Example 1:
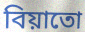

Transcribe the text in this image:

বিয়াতো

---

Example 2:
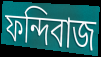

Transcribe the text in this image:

ফন্দিবাজ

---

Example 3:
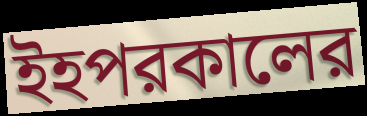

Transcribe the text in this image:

ইহপরকালের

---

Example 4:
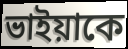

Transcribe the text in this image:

ভাইয়াকে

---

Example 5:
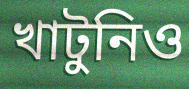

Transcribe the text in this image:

খাটুনিও